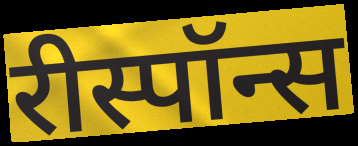
रीस्पॉन्स